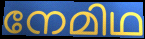
നേമിഥ